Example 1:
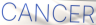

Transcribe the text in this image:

CANCER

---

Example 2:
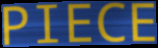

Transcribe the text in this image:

PIECE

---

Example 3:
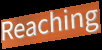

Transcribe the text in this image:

Reaching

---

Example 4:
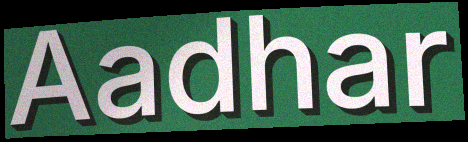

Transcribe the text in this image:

Aadhar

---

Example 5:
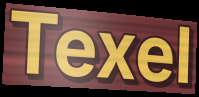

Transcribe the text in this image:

Texel